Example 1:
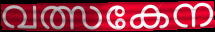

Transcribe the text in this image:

വത്സകേന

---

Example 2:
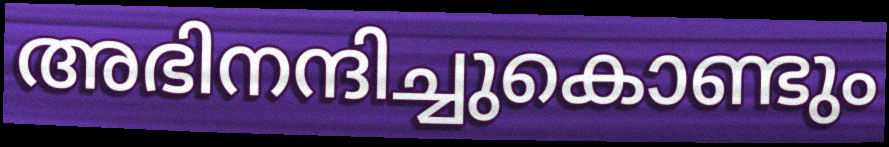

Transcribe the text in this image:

അഭിനന്ദിച്ചുകൊണ്ടും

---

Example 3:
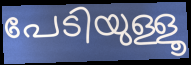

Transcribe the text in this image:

പേടിയുള്ളൂ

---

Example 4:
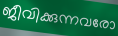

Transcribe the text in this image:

ജീവിക്കുന്നവരോ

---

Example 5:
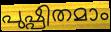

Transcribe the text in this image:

പുഷ്പിതമാം